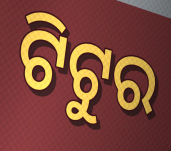
ଟିଟୁର